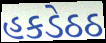
હકડેઠઠ